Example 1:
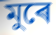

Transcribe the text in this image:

মুৰে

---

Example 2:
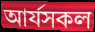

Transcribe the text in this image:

আৰ্যসকল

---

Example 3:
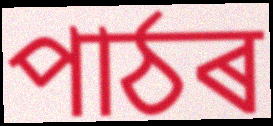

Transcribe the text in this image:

পাঠৰ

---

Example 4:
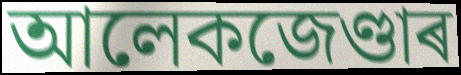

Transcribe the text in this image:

আলেকজেণ্ডাৰ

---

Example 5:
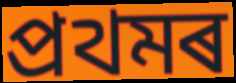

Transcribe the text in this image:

প্ৰথমৰ